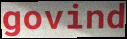
govind